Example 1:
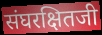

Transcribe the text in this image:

संघरक्षितजी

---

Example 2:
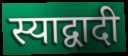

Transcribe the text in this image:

स्याद्वादी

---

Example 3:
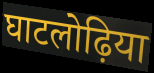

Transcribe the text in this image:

घाटलोढ़िया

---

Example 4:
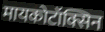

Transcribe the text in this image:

मायकोटॉक्सिन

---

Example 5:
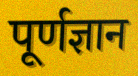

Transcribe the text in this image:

पूर्णज्ञान